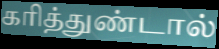
கரித்துண்டால்